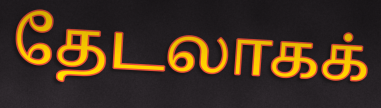
தேடலாகக்